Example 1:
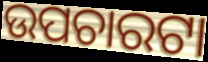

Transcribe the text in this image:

ଉପଚାରଟା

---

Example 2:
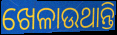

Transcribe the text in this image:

ଖେଳାଉଥାନ୍ତି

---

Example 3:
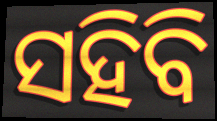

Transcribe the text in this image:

ସହିବି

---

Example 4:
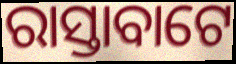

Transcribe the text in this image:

ରାସ୍ତାବାଟେ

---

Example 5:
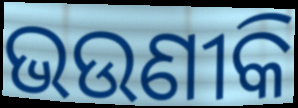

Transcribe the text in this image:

ଭଉଣୀକି